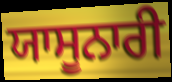
ਯਾਸੂਨਾਰੀ